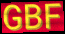
GBF